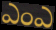
ఎంఎ